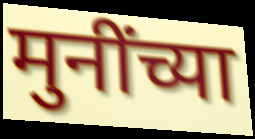
मुनींच्या